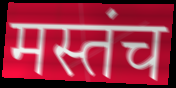
मस्तंच